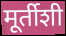
मूर्तीशी